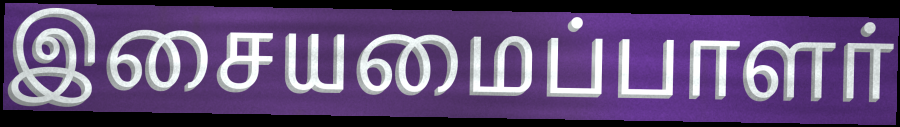
இசையமைப்பாளர்